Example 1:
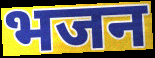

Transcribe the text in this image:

भजन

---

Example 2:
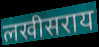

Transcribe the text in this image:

लखीसराय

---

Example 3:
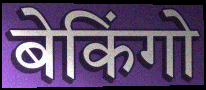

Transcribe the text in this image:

बेकिंगो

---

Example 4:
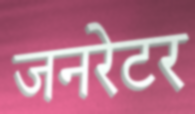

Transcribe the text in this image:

जनरेटर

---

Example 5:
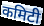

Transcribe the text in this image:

कमिटी